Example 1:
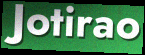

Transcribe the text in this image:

Jotirao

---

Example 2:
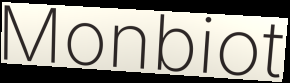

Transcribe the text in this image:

Monbiot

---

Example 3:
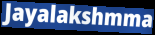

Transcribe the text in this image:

Jayalakshmma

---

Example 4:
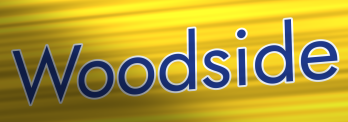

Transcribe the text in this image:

Woodside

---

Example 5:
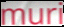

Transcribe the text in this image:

muri